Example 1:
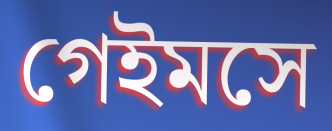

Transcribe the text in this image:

গেইমসে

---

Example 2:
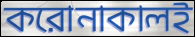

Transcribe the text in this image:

করোনাকালই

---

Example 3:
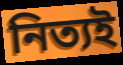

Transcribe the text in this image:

নিত্যই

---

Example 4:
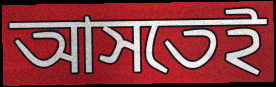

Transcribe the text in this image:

আসতেই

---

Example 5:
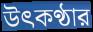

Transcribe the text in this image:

উৎকণ্ঠার